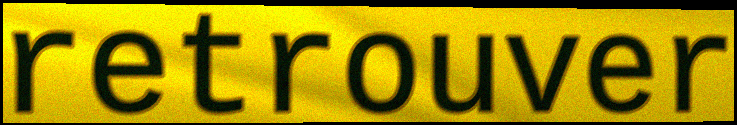
retrouver